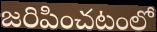
జరిపించటంలో